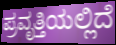
ಪ್ರವೃತ್ತಿಯಲ್ಲಿದೆ